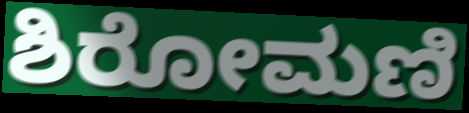
ಶಿರೋಮಣಿ